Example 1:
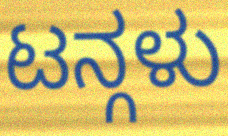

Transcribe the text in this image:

ಟನ್ಗಳು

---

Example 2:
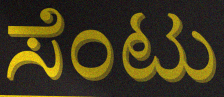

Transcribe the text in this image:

ಸೆಂಟು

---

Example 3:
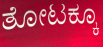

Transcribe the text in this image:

ತೋಟಕ್ಕೂ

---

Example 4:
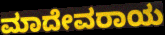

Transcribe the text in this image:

ಮಾದೇವರಾಯ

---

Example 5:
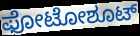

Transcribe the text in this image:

ಫೋಟೋಶೂಟ್